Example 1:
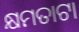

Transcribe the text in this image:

କ୍ଷମତାଟା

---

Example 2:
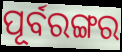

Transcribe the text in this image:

ପୂର୍ବରଙ୍ଗର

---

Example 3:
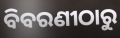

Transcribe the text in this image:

ବିବରଣୀଠାରୁ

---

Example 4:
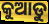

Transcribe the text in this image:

କୁଆଡୁ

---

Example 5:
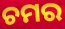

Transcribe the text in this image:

ଚମର